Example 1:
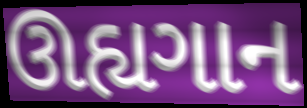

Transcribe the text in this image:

ઊહ્યગાન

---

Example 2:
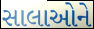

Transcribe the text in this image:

સાલાઓને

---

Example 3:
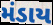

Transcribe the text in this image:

મંડાય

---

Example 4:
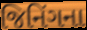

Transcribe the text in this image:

જિનિંગના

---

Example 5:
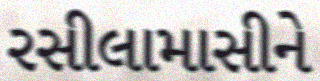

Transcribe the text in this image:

રસીલામાસીને